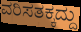
ವರಿಸತಕ್ಕದ್ದು